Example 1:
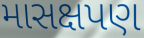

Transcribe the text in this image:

માસક્ષપણ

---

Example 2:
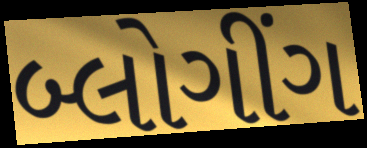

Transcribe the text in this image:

બ્લોગીંગ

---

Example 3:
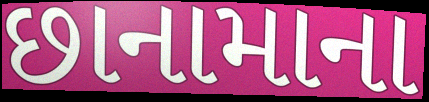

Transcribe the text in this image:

છાનામાના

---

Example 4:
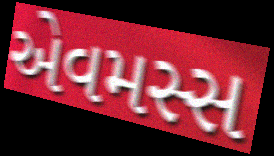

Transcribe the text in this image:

એવમસ્સ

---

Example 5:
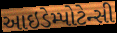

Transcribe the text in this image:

આઇડેમ્પોટેન્સી